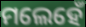
ମଲେହେଁ